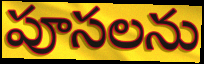
పూసలను